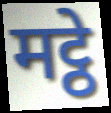
मट्ठे